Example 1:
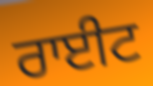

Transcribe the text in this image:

ਰਾਈਟ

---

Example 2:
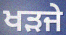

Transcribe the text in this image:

ਖੜਜੇ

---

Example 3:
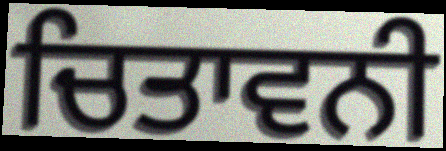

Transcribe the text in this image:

ਚਿਤਾਵਨੀ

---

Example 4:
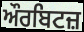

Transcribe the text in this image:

ਔਰਬਿਟਜ਼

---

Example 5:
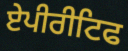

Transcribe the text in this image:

ਏਪੀਰੀਟਿਫ